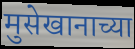
मुसेखानाच्या